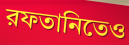
রফতানিতেও